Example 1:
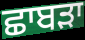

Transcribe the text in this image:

ਛਾਬੜਾ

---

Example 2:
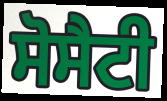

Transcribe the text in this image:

ਸੋਸੈਟੀ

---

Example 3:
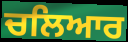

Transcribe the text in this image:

ਚਲਿਆਰ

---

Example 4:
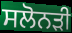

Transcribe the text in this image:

ਸਲੋਨੜੀ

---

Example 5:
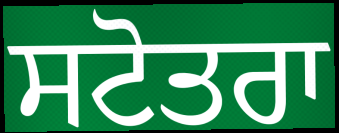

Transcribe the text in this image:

ਸਟੋਤਰਾ